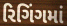
રિગિંગમાં